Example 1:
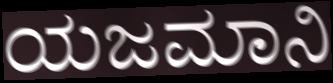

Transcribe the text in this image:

ಯಜಮಾನಿ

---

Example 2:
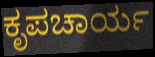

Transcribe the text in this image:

ಕೃಪಚಾರ್ಯ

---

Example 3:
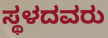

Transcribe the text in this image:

ಸ್ಥಳದವರು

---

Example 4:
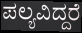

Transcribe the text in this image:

ಪಲ್ಯವಿದ್ದರೆ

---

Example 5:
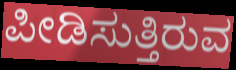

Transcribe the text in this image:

ಪೀಡಿಸುತ್ತಿರುವ